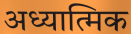
अध्यात्मिक